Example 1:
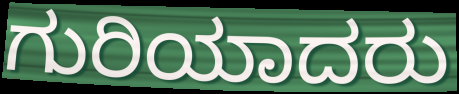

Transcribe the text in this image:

ಗುರಿಯಾದರು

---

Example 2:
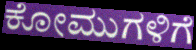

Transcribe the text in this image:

ಕೋಮುಗಳಿಗೆ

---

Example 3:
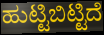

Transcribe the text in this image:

ಹುಟ್ಟಿಬಿಟ್ಟಿದೆ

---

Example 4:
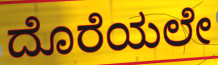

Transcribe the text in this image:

ದೊರೆಯಲೇ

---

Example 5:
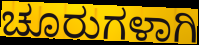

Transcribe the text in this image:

ಚೂರುಗಳಾಗಿ